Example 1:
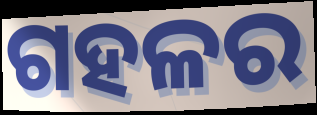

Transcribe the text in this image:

ଗହଳର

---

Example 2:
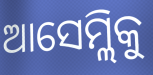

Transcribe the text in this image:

ଆସେମ୍ଲିକୁ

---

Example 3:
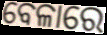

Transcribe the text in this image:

ବେଳାରେ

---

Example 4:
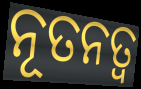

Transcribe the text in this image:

ନୂତନତ୍ୱ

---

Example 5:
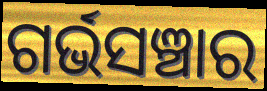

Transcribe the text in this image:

ଗର୍ଭସଞ୍ଚାର